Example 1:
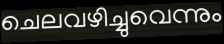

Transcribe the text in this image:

ചെലവഴിച്ചുവെന്നും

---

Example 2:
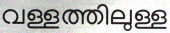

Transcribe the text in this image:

വള്ളത്തിലുള്ള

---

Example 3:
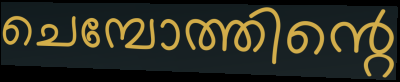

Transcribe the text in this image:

ചെമ്പോത്തിന്റെ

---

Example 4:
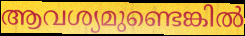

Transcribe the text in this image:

ആവശ്യമുണ്ടെങ്കിൽ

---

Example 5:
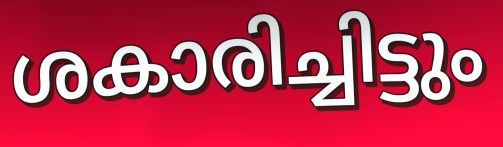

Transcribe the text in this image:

ശകാരിച്ചിട്ടും